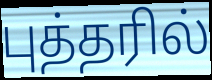
புத்தரில்